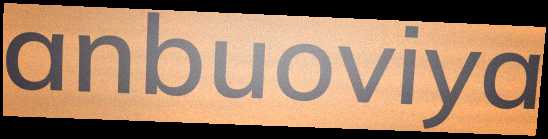
anbuoviya